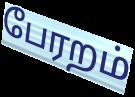
பேரறம்